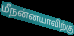
மீநன்னயாவிற்கு